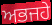
ਅਭਜਹੇ